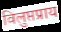
विलुप्तप्राय